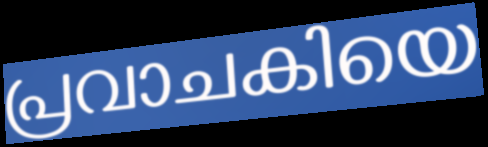
പ്രവാചകിയെ